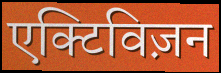
एक्टिविज़न